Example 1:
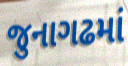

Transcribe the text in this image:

જુનાગઢમાં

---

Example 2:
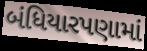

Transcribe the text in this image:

બંધિયારપણામાં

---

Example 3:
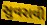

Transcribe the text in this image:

સુવરાવી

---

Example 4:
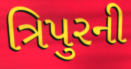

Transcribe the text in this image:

ત્રિપુરની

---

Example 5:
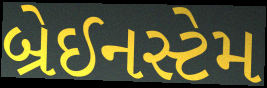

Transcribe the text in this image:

બ્રેઈનસ્ટેમ